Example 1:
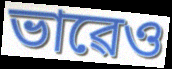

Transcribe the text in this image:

ভাৱেও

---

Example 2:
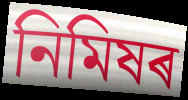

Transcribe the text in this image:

নিমিষৰ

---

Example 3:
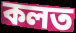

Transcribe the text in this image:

কলত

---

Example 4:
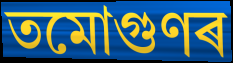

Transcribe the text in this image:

তমোগুণৰ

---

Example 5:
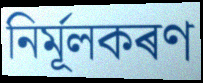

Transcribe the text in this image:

নিৰ্মূলকৰণ